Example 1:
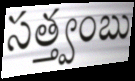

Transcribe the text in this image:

సత్త్వంబు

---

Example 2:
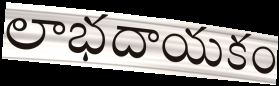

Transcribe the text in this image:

లాభదాయకం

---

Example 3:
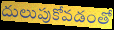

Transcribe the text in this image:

దులుపుకోవడంతో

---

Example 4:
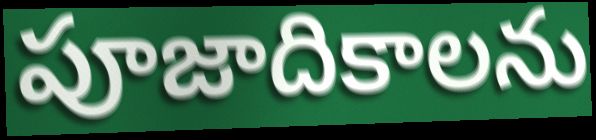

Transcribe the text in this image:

పూజాదికాలను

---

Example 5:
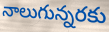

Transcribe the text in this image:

నాలుగున్నరకు